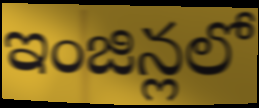
ఇంజిన్లలో